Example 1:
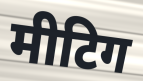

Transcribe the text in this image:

मीटिग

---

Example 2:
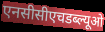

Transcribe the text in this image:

एनसीसीएचडब्ल्यूओ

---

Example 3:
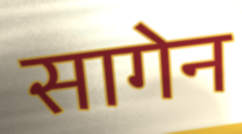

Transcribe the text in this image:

सागेन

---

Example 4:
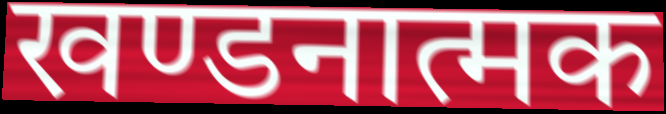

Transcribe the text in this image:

खण्डनात्मक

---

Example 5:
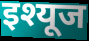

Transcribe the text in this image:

इश्यूज